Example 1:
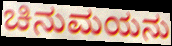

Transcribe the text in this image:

ಚಿನುಮಯನು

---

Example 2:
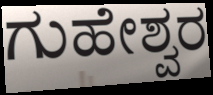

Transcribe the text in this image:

ಗುಹೇಶ್ವರ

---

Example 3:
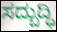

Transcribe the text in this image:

ಸದ್ಬುದ್ಧಿ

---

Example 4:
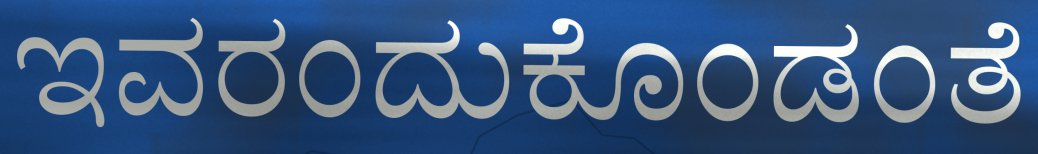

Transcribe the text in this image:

ಇವರಂದುಕೊಂಡಂತೆ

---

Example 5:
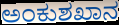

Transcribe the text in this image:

ಅಂಕುಶಖಾನ